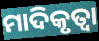
ମାଦିକୃତ୍ୱା